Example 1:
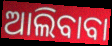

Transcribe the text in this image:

ଆଲିବାବା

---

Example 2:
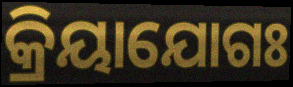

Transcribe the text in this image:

କ୍ରିୟାଯୋଗଃ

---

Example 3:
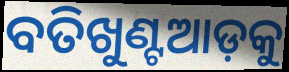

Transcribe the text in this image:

ବତିଖୁଣ୍ଟଆଡ଼କୁ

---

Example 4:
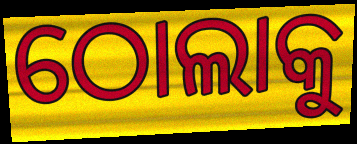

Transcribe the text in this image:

ଠୋଲାକୁ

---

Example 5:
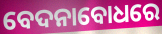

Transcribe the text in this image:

ବେଦନାବୋଧରେ